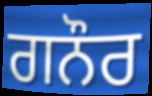
ਗਨੌਰ